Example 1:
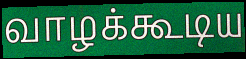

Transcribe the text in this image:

வாழக்கூடிய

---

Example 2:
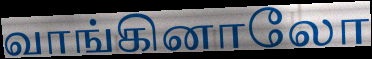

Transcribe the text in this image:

வாங்கினாலோ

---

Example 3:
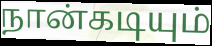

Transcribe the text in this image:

நான்கடியும்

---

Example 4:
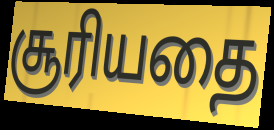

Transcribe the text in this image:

சூரியதை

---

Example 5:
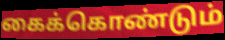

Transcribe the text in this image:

கைக்கொண்டும்